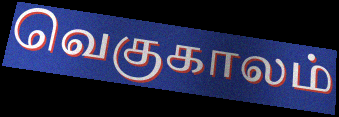
வெகுகாலம்